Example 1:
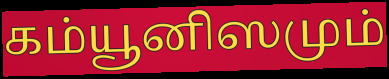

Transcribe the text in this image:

கம்யூனிஸமும்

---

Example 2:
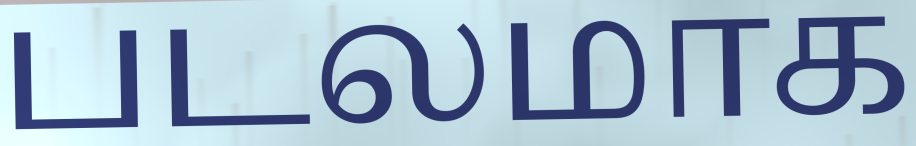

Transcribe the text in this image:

படலமாக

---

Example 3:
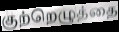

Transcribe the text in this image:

குற்றெழுத்தை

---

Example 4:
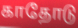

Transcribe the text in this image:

காதோடு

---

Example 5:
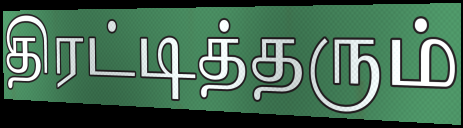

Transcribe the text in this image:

திரட்டித்தரும்